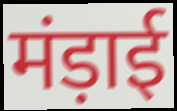
मंड़ाई